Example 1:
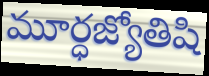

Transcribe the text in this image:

మూర్ధజ్యోతిషి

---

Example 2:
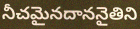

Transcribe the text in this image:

నీచమైనదాననైతిని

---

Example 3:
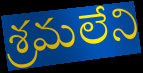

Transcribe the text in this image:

శ్రమలేని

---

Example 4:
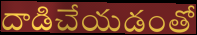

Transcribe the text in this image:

దాడిచేయడంతో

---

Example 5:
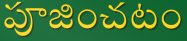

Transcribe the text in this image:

పూజించటం